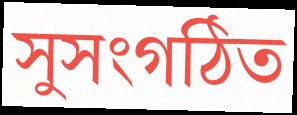
সুসংগঠিত